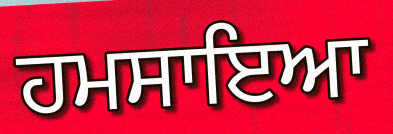
ਹਮਸਾਇਆ